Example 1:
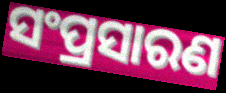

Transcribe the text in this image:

ସଂପ୍ରସାରଣ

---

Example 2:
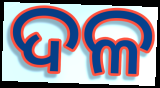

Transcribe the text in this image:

ଦଳ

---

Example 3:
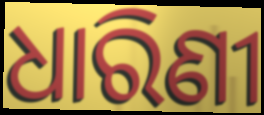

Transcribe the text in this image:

ଧାରିଣୀ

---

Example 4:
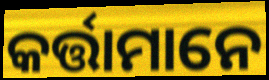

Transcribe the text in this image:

କର୍ତ୍ତାମାନେ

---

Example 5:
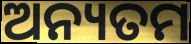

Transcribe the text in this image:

ଅନ୍ୟତମ